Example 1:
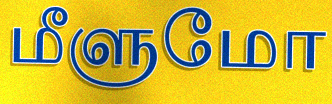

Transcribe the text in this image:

மீளுமோ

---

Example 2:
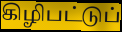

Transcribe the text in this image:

கிழிபட்டுப்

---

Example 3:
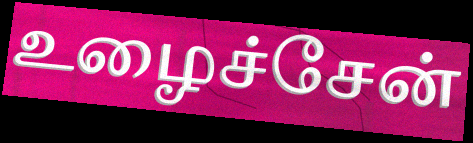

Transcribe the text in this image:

உழைச்சேன்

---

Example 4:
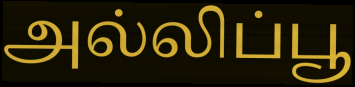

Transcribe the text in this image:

அல்லிப்பூ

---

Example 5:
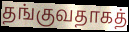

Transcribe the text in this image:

தங்குவதாகத்